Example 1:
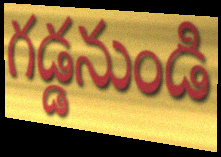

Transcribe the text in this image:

గడ్డనుండి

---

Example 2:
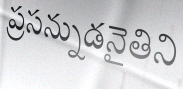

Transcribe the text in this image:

ప్రసన్నుడనైతిని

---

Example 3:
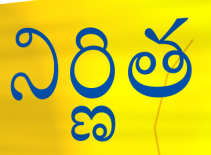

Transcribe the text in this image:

నిర్ణిత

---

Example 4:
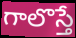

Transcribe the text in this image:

గాలొస్తే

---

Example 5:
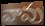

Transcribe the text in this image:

వావు